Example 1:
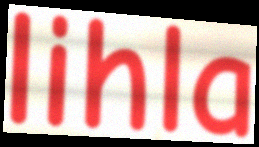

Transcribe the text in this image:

lihla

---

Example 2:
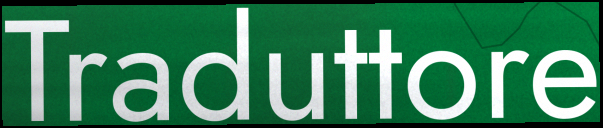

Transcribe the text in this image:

Traduttore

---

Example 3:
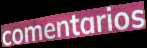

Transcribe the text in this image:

comentarios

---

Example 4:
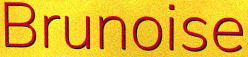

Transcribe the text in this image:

Brunoise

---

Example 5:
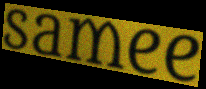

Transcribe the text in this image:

samee